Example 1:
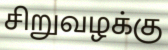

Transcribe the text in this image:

சிறுவழக்கு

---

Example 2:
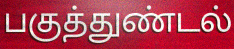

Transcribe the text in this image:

பகுத்துண்டல்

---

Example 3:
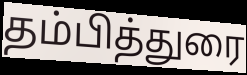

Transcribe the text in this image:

தம்பித்துரை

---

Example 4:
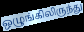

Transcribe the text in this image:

ஒழுங்கிலிருந்து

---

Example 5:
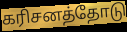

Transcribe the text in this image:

கரிசனத்தோடு